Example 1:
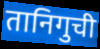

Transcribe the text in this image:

तानिगुची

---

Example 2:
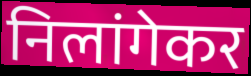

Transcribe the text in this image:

निलांगेकर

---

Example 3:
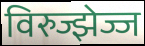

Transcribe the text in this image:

विरुज्झेज्ज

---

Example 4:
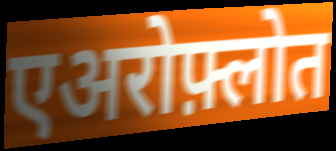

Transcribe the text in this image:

एअरोफ़्लोत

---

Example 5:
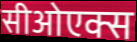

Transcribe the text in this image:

सीओएक्स